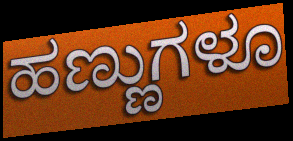
ಹಣ್ಣುಗಳೂ